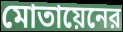
মোতায়েনের